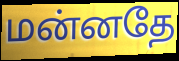
மன்னதே